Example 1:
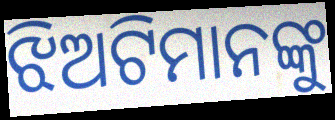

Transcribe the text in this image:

ଝିଅଟିମାନଙ୍କୁ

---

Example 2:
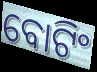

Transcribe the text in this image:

ବୋଟିଂ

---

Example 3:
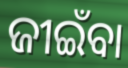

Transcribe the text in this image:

ଜୀଇଁବା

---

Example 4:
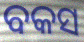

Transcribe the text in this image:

ବକସ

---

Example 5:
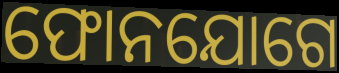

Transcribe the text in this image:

ଫୋନଯୋଗେ